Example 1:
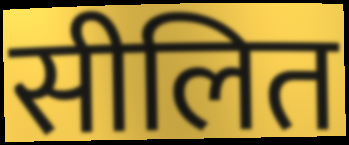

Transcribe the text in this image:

सीलित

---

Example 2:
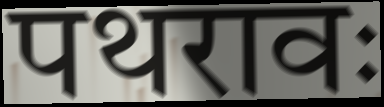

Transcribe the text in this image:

पथरावः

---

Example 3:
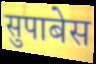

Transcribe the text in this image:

सुपाबेस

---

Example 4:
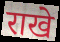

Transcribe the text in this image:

राखे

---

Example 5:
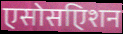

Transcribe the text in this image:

एसोसएिशन